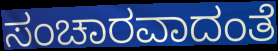
ಸಂಚಾರವಾದಂತೆ